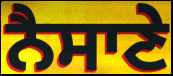
ਨੈਸਾਣੇ